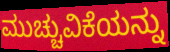
ಮುಚ್ಚುವಿಕೆಯನ್ನು